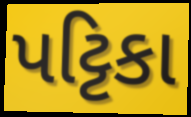
પટ્ટિકા